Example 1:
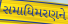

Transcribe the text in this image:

સમાધિમરણને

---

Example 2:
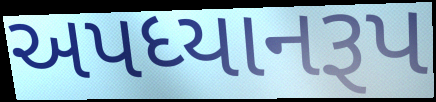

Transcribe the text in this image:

અપધ્યાનરૂપ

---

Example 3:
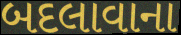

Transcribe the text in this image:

બદલાવાના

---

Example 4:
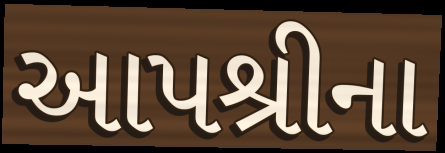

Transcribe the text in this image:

આપશ્રીના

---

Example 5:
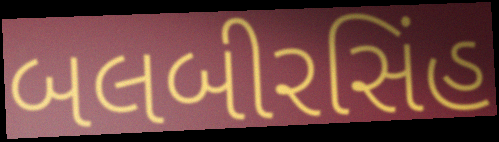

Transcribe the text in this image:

બલબીરસિંહ